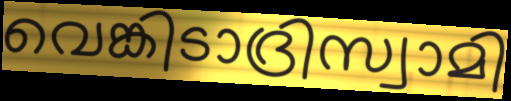
വെങ്കിടാദ്രിസ്വാമി